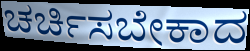
ಚರ್ಚಿಸಬೇಕಾದ